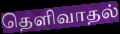
தெளிவாதல்